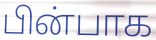
பின்பாக